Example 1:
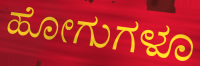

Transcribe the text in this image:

ಹೋಗುಗಳೂ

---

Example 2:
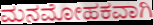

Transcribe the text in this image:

ಮನಮೋಹಕವಾಗಿ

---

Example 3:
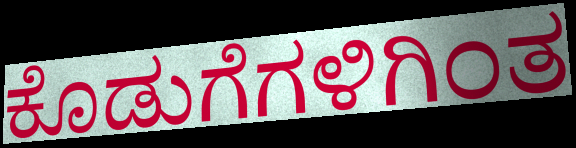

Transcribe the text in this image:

ಕೊಡುಗೆಗಳಿಗಿಂತ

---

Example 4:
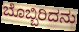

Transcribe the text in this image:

ಬೊಬ್ಬಿರಿದನು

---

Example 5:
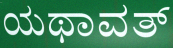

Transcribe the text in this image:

ಯಥಾವತ್